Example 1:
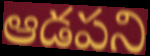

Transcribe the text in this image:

ఆడపని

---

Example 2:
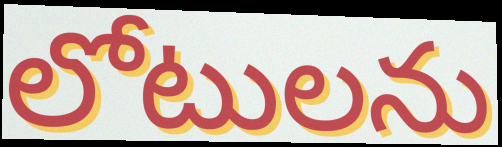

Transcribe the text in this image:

లోటులను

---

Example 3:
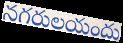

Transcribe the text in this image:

నగరులయందు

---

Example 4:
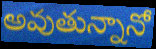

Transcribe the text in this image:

అవుతున్నానో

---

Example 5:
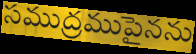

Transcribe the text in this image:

సముద్రముపైనను